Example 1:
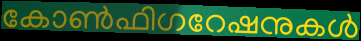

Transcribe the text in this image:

കോൺഫിഗറേഷനുകൾ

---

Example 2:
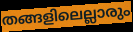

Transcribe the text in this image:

തങ്ങളിലെല്ലാരും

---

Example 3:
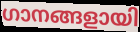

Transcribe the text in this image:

ഗാനങ്ങളായി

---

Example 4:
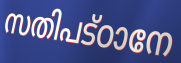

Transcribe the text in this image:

സതിപട്ഠാനേ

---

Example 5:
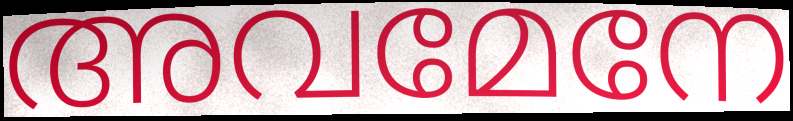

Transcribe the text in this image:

അവമേനേ